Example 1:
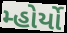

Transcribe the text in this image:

મ્હોર્યો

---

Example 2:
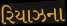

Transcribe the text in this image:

રિયાઝના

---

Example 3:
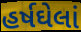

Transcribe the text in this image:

હર્ષઘેલાં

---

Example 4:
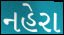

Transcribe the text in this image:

નહેરા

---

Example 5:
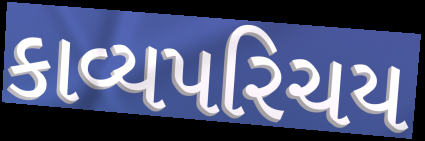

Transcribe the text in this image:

કાવ્યપરિચય